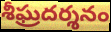
శీఘ్రదర్శనం